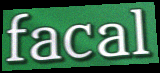
facal